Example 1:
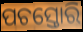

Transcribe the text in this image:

ପଚସ୍ତୋରି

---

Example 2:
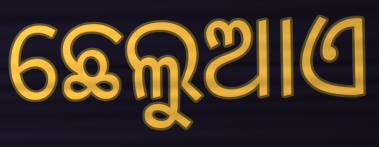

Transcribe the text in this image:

ଛେଲୁଆଏ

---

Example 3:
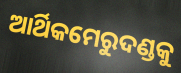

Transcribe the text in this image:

ଆର୍ଥିକମେରୁଦଣ୍ଡକୁ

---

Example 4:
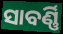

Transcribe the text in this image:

ସାବର୍ଣ୍ଣି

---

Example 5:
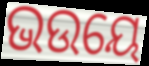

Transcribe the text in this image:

ଭଉୟେ